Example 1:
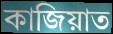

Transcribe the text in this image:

কাজিয়াত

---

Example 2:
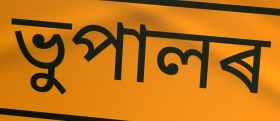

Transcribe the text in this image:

ভুপালৰ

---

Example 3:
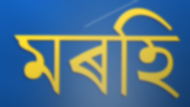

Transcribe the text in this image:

মৰহি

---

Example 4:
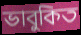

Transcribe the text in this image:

ভাবুকিত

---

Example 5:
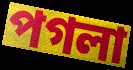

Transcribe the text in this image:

পগলা